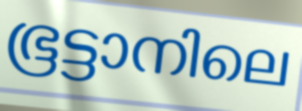
ഭൂട്ടാനിലെ